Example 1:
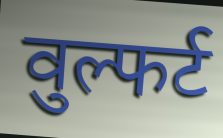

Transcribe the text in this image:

वुल्फर्ट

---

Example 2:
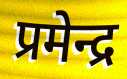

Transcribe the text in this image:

प्रमेन्द्र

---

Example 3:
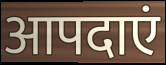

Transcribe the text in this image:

आपदाएं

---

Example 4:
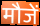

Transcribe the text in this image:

मौजें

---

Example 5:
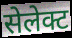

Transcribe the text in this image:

सेलेक्ट